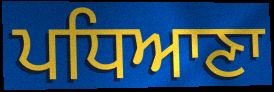
ਪਧਿਆਣਾ